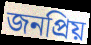
জনপ্রিয়